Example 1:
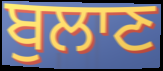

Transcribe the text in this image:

ਬੁਲਾਣ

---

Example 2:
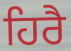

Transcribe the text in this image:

ਹਿਰੈ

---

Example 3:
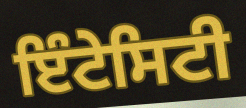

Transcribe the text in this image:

ਇੰਟੇਸਿਟੀ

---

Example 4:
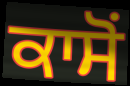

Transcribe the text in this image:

ਕਾਸੋਂ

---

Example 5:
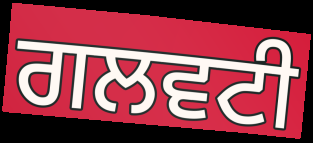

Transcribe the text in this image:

ਗਲਵਟੀ